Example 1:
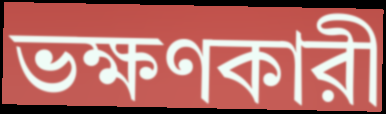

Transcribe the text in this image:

ভক্ষণকারী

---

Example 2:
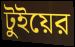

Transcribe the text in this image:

টুইয়ের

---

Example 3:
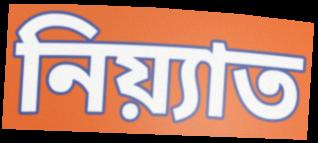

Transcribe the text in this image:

নিয়্যাত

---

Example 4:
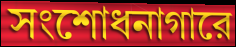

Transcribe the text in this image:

সংশোধনাগারে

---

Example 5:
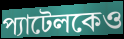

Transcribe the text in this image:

প্যাটেলকেও